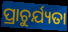
ପ୍ରାଚୁର୍ଯ୍ୟତା